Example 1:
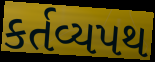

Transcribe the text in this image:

કર્તવ્યપથ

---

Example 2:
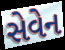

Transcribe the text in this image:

સેવેન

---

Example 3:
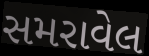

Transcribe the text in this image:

સમરાવેલ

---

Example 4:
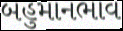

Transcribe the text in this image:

બહુમાનભાવ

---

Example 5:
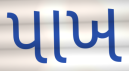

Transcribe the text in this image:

પાખ